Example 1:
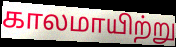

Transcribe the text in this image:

காலமாயிற்று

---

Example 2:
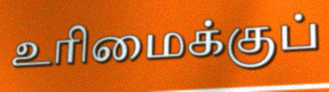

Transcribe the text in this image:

உரிமைக்குப்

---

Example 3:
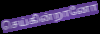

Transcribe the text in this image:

செய்கின்றானோ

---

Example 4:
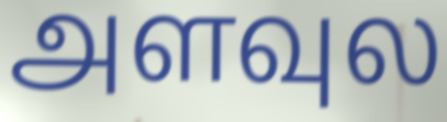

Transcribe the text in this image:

அளவுல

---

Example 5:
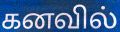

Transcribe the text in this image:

கனவில்